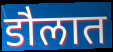
डौलात